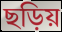
ছড়িয়